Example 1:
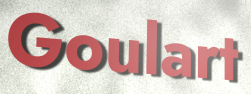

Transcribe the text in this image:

Goulart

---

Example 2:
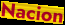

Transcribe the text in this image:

Nacion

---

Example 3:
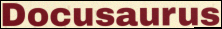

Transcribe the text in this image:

Docusaurus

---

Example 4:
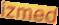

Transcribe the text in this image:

izmed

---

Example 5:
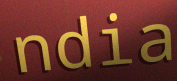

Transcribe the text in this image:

ndia